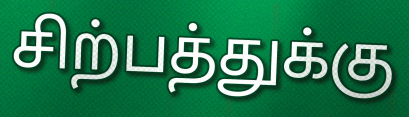
சிற்பத்துக்கு